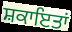
ਸ਼ਕਾਇਤਾਂ